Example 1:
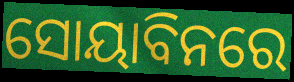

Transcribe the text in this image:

ସୋୟାବିନରେ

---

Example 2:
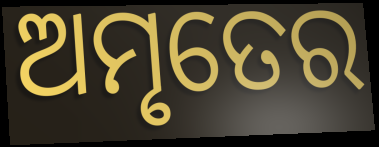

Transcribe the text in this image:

ଅମୃତେର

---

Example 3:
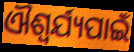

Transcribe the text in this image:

ଐଶ୍ୱର୍ଯ୍ୟପାଇଁ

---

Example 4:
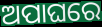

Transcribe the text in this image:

ଅପାଘରେ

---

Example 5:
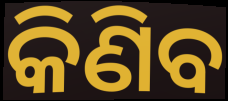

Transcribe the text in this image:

କିଣିବ